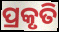
ପ୍ରକୃତି